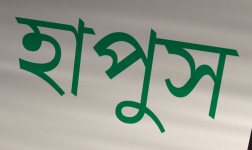
হাপুস